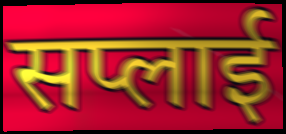
सप्‍लाई